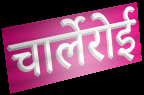
चार्लेरोई